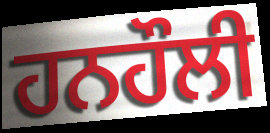
ਹਨਹੌਲੀ